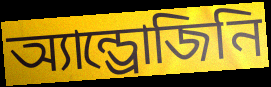
অ্যান্ড্রোজিনি